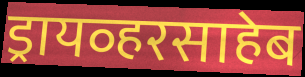
ड्रायव्हरसाहेब